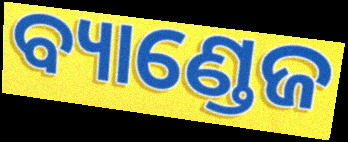
ବ୍ୟାଣ୍ଡେଜ